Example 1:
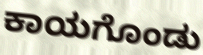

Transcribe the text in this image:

ಕಾಯಗೊಂಡು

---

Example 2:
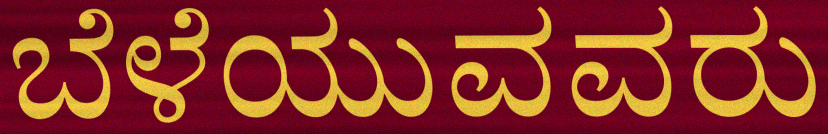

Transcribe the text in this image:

ಬೆಳೆಯುವವರು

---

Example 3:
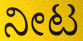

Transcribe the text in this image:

ನೀಟ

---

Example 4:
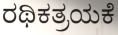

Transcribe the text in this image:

ರಥಿಕತ್ರಯಕೆ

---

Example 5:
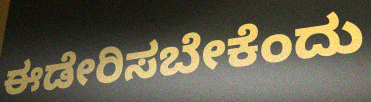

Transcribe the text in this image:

ಈಡೇರಿಸಬೇಕೆಂದು